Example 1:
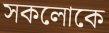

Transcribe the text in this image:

সকলোকে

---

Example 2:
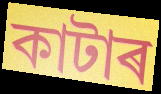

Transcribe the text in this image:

কাটাৰ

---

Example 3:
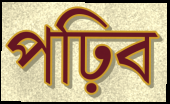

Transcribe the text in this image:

পঢ়িব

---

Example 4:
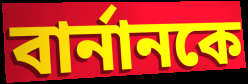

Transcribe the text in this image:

বাৰ্নানকে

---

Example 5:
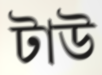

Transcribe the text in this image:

টাউ